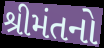
શ્રીમંતનો